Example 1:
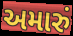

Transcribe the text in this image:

અમારું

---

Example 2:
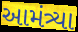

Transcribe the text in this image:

આમંત્ર્યા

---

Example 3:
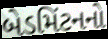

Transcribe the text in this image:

બેડમિંટનનો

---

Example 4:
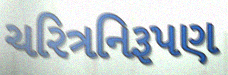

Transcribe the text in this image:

ચરિત્રનિરૂપણ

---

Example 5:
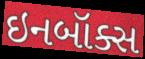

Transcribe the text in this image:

ઇનબૉક્સ